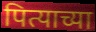
पित्याच्या